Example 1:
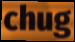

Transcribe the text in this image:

chug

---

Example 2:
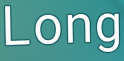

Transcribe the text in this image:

Long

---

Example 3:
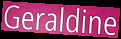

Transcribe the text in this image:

Geraldine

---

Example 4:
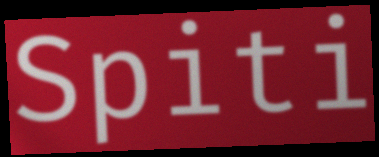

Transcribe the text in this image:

Spiti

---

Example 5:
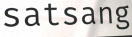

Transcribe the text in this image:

satsang